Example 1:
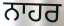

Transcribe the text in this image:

ਨਾਹਰ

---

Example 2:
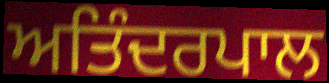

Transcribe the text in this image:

ਅਤਿੰਦਰਪਾਲ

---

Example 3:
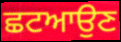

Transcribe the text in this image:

ਛਟਆਉਣ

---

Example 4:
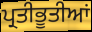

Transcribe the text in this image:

ਪ੍ਰਤੀਭੂਤੀਆਂ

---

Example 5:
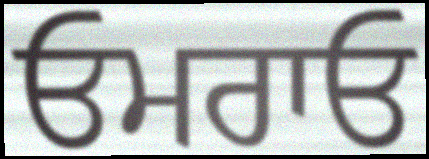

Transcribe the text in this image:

ਓਮਰਾਓ